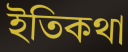
ইতিকথা